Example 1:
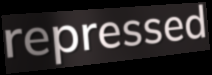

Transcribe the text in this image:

repressed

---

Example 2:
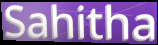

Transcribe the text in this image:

Sahitha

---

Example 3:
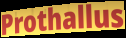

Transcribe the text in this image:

Prothallus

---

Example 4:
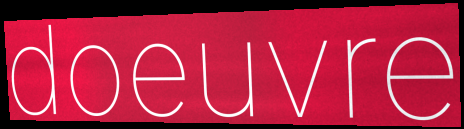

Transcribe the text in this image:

doeuvre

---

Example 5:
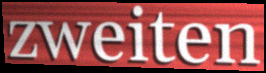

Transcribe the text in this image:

zweiten